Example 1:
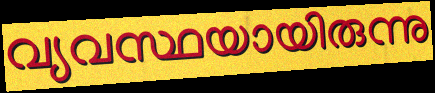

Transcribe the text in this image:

വ്യവസ്ഥയായിരുന്നു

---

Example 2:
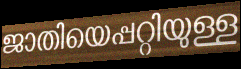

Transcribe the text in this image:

ജാതിയെപ്പറ്റിയുള്ള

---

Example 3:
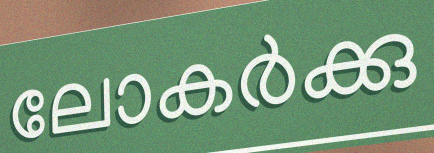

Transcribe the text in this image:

ലോകർക്കു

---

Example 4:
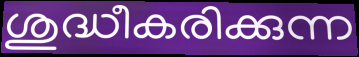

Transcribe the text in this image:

ശുദ്ധീകരിക്കുന്ന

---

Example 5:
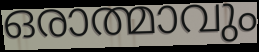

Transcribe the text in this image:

ഒരാത്മാവും